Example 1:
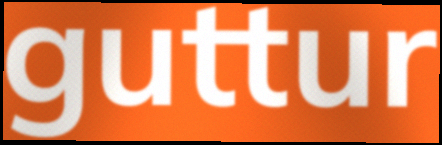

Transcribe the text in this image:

guttur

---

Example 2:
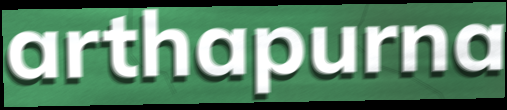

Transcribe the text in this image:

arthapurna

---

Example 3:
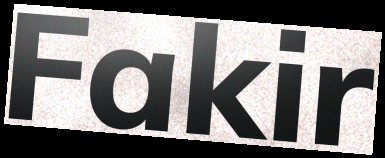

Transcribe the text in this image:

Fakir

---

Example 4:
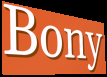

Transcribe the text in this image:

Bony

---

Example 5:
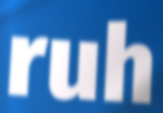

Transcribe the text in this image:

ruh